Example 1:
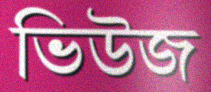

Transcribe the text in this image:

ভিউজ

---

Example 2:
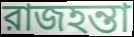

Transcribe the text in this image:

রাজহন্তা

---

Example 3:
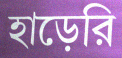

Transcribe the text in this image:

হাড়েরি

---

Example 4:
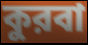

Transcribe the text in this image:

কুরবা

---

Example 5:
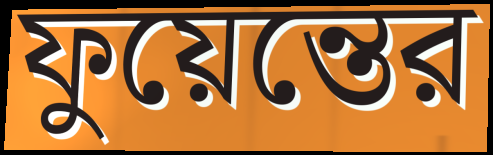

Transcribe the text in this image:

ফুয়েন্তের